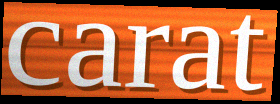
carat